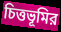
চিত্তভূমির